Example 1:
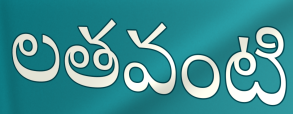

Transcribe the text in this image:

లతవంటి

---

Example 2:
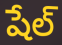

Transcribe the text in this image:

షేల్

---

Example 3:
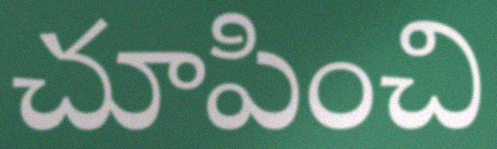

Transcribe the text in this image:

చూపించి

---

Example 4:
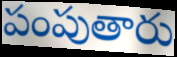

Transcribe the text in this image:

పంపుతారు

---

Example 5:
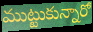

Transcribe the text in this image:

ముట్టుకున్నారో